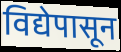
विद्येपासून